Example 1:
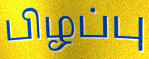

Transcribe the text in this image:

பிழப்பு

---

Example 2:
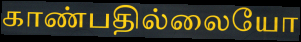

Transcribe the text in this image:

காண்பதில்லையோ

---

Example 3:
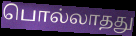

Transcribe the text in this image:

பொல்லாதது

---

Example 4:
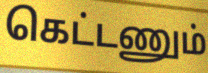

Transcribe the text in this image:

கெட்டணும்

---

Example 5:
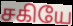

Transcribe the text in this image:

சகியே